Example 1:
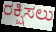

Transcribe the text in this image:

ರಕ್ಷಿಸಲು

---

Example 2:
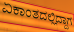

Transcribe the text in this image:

ಏಕಾಂತದಲ್ಲಿದ್ದಾಗ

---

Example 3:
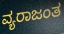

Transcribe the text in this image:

ವ್ಯರಾಜಂತ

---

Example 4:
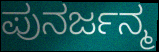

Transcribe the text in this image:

ಪುನರ್ಜನ್ಮ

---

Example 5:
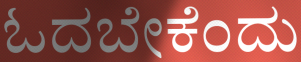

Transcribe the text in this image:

ಓದಬೇಕೆಂದು